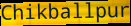
Chikballpur